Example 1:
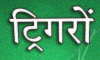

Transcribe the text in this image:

ट्रिगरों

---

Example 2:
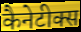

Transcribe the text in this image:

कैनेटीक्स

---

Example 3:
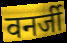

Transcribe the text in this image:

वनर्जी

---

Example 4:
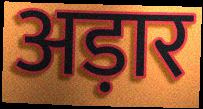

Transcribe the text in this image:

अड़ार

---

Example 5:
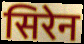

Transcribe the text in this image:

सिरेन